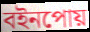
বইনপোয়